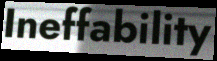
Ineffability